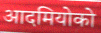
आदमियोको